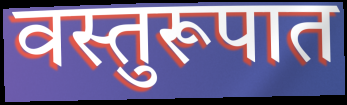
वस्तुरूपात